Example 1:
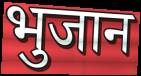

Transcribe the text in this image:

भुजान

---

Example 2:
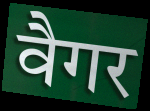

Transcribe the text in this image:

वैगर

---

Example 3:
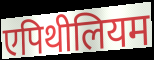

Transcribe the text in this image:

एपिथीलियम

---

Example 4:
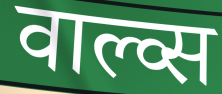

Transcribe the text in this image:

वाल्व्स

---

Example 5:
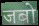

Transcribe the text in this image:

जबो